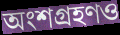
অংশগ্রহণও